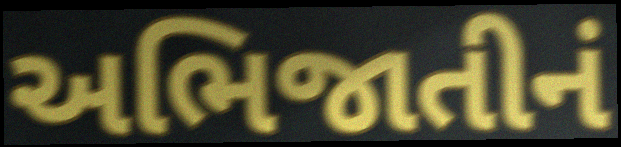
અભિજાતીનં